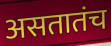
असतातंच